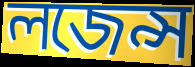
লজেন্স